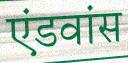
एंडवांस